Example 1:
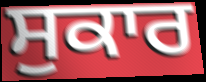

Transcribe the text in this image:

ਸੁਕਾਰ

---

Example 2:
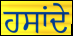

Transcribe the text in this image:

ਹਸਾਂਦੇ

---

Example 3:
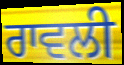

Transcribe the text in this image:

ਰਾਵਲੀ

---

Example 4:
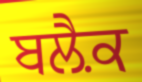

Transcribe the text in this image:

ਬਲ਼ੈਕ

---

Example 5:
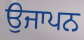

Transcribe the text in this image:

ਉਜਾਪਨ